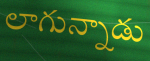
లాగున్నాడు